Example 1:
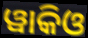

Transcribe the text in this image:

ୱାକିଓ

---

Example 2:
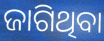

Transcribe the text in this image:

ଜାଗିଥିବା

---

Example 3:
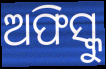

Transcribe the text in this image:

ଅଫିସ୍କୁ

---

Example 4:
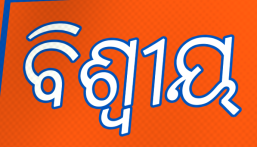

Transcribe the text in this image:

ବିଶ୍ଵୀୟ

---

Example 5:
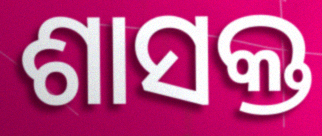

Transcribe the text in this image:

ଶାସକ୍ତ